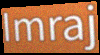
Imraj